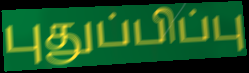
புதுப்பிப்பு